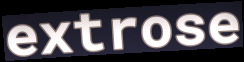
extrose